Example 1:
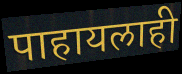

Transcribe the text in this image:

पाहायलाही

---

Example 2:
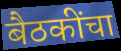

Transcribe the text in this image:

बैठकींचा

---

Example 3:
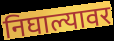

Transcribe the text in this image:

निघाल्यावर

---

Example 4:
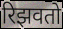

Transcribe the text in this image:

रिझवतो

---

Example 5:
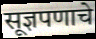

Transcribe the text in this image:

सूज्ञपणाचे